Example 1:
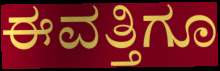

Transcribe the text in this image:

ಈವತ್ತಿಗೂ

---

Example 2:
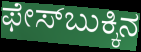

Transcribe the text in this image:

ಫೇಸ್‌ಬುಕ್ಕಿನ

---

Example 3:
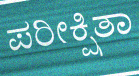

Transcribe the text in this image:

ಪರೀಕ್ಷಿತಾ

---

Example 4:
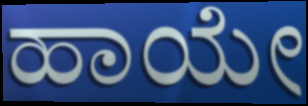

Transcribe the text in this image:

ಹಾಯೇ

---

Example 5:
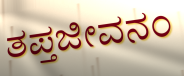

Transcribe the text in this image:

ತಪ್ತಜೀವನಂ